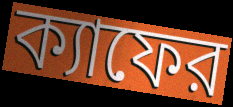
ক্যাফের